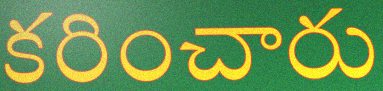
కరించారు